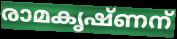
രാമകൃഷ്ണന്